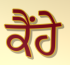
ਕੈਂਹੇ